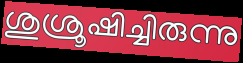
ശുശ്രൂഷിച്ചിരുന്നു